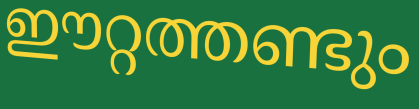
ഈറ്റത്തണ്ടും